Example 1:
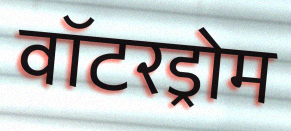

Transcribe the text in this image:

वॉटरड्रोम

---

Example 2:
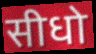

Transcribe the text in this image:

सीधो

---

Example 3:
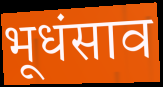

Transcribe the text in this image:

भूधंसाव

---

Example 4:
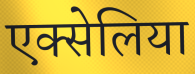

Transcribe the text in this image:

एक्सेलिया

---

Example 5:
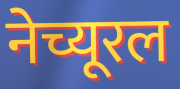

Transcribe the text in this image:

नेच्यूरल